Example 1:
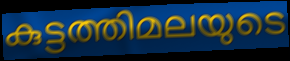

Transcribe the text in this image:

കുട്ടത്തിമലയുടെ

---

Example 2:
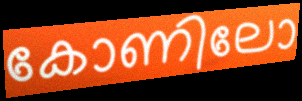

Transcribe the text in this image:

കോണിലോ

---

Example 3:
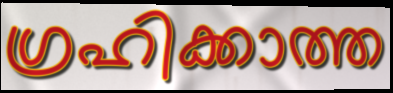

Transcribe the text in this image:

ഗ്രഹിക്കാത്ത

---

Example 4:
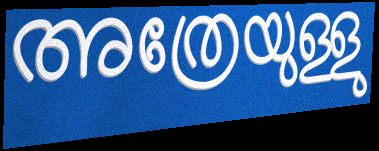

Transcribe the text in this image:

അത്രേയുള്ളു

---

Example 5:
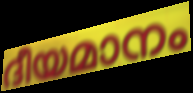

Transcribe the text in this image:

ദീയമാനം